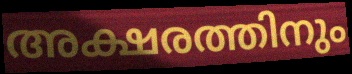
അക്ഷരത്തിനും